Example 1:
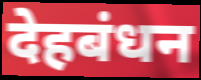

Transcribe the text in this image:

देहबंधन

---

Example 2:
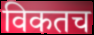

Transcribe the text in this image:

विकतच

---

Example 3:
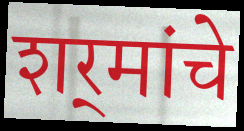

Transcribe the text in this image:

शर्मांचे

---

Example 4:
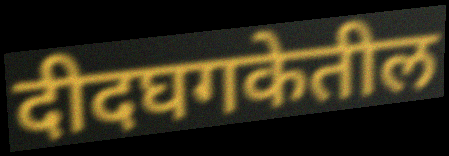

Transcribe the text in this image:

दीदघगकेतील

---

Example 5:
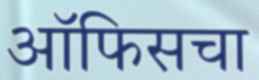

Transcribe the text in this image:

ऑफिसचा